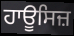
ਹਾਊਸਿਜ਼